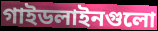
গাইডলাইনগুলো